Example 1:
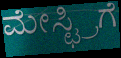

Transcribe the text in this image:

ಮೇಸ್ಟ್ರಿಗೆ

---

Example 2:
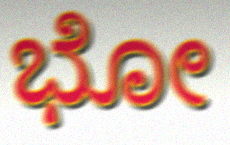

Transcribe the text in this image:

ಭೋ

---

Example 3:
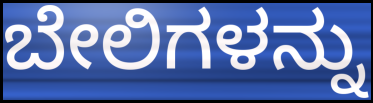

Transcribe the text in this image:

ಬೇಲಿಗಳನ್ನು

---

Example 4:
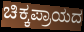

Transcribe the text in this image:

ಚಿಕ್ಕಪ್ರಾಯದ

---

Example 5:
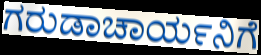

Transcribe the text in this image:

ಗರುಡಾಚಾರ್ಯನಿಗೆ